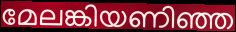
മേലങ്കിയണിഞ്ഞ